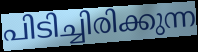
പിടിച്ചിരിക്കുന്ന